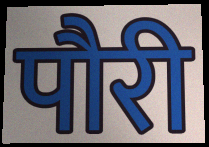
पौरी